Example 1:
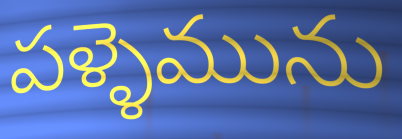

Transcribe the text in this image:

పళ్ళెమును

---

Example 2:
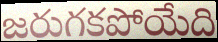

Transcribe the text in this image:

జరుగకపోయేది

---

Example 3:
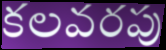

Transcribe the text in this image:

కలవరపు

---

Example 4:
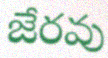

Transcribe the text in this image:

జేరవు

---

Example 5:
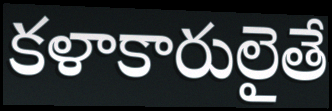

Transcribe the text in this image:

కళాకారులైతే